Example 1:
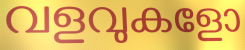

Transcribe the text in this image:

വളവുകളോ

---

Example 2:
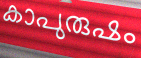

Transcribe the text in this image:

കാപുരുഷം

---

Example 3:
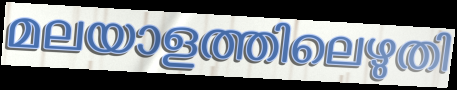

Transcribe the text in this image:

മലയാളത്തിലെഴുതി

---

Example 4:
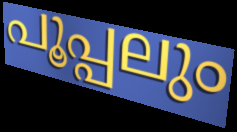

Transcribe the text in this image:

പൂപ്പലും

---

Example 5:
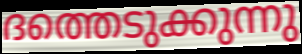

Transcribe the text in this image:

ദത്തെടുക്കുന്നു